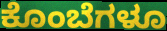
ಕೊಂಬೆಗಳೂ